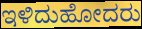
ಇಳಿದುಹೋದರು